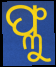
ଫ୍ଳୁ